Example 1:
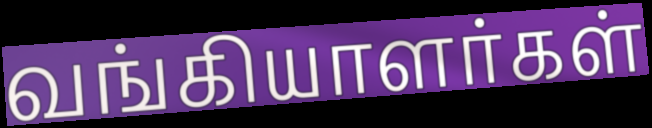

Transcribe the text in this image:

வங்கியாளர்கள்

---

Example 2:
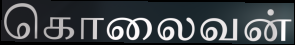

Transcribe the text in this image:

கொலைவன்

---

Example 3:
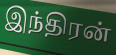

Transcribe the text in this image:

இந்திரன்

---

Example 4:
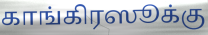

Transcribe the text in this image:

காங்கிரஸூக்கு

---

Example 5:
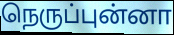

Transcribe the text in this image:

நெருப்புன்னா